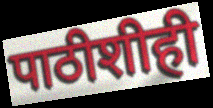
पाठीशीही